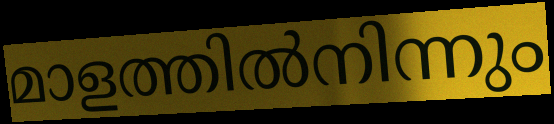
മാളത്തിൽനിന്നും